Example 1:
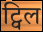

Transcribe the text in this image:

ट्विल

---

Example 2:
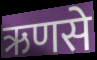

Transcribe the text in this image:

ऋणसे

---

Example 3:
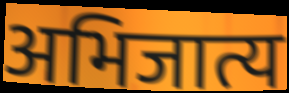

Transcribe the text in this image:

अभिजात्य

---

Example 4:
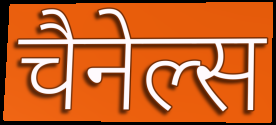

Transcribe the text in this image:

चैनेल्स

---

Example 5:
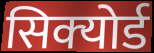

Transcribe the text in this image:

सिक्‍योर्ड